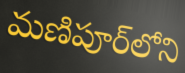
మణిపూర్‌లోని